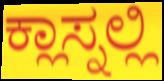
ಕ್ಲಾಸ್ನಲ್ಲಿ